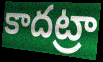
కాదట్రా